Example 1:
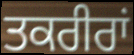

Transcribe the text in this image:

ਤਕਰੀਰਾਂ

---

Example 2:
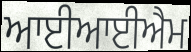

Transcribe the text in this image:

ਆਈਆਈਐਮ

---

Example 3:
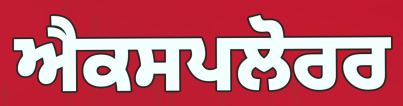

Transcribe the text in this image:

ਐਕਸਪਲੋਰਰ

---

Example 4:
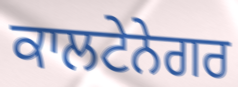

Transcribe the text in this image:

ਕਾਲਟੇਨੇਗਰ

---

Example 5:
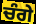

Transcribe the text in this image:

ਚੰਗੇ